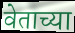
वेताच्या